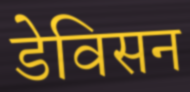
डेविसन